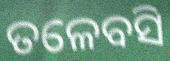
ତଳେବସି